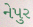
નેપુર